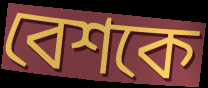
বেশকে